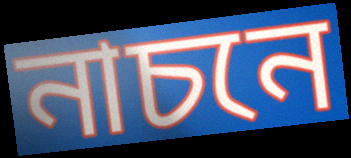
নাচনে